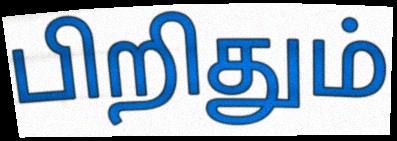
பிறிதும்